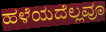
ಹಳೆಯದೆಲ್ಲವೂ